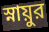
স্নায়ুর